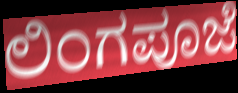
ಲಿಂಗಪೂಜೆ